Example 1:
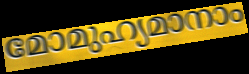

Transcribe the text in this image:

മോമുഹ്യമാനാം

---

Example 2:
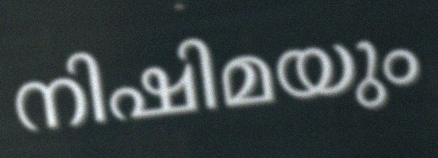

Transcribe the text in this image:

നിഷിമയും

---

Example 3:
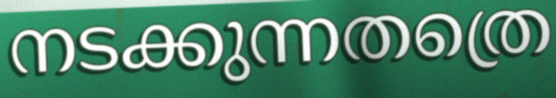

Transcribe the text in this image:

നടക്കുന്നതത്രെ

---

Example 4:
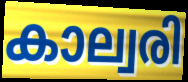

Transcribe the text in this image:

കാല്വരി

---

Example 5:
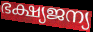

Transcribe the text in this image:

ഭക്ഷ്യജന്യ